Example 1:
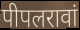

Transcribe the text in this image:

पीपलरावां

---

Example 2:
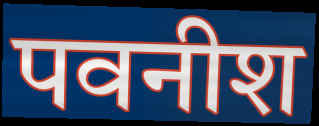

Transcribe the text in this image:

पवनीश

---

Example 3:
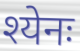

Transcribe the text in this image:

श्येनः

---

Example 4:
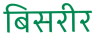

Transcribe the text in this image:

बिसरीर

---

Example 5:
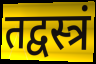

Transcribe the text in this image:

तद्वस्त्रं